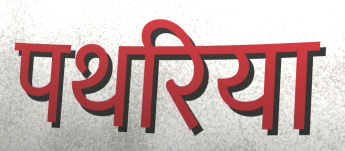
पथरिया